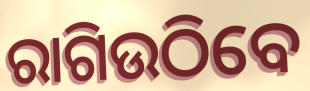
ରାଗିଉଠିବେ